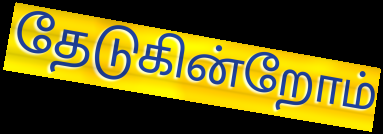
தேடுகின்றோம்